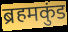
ब्रहमकुंड